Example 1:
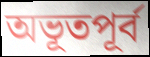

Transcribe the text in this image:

অভূতপূৰ্ব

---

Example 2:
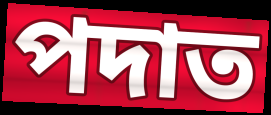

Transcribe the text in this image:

পদাত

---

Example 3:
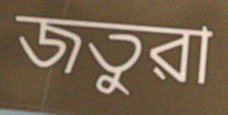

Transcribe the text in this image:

জতুৱা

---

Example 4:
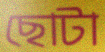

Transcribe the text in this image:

ছোটা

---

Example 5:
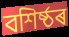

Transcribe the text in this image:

বশিষ্ঠৰ